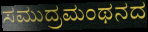
ಸಮುದ್ರಮಂಥನದ